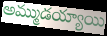
అమ్ముడయ్యాయి